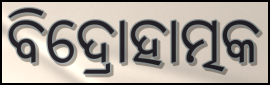
ବିଦ୍ରୋହାତ୍ମକ